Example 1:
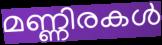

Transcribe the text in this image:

മണ്ണിരകൾ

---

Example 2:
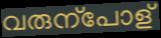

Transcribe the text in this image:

വരുന്പോള്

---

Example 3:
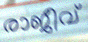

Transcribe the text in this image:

രാജീവ്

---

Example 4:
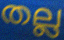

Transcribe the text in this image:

തല്ല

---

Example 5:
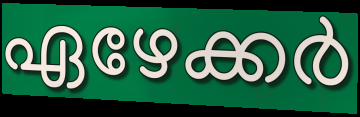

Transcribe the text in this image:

ഏഴേക്കർ